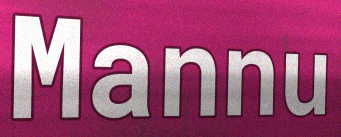
Mannu